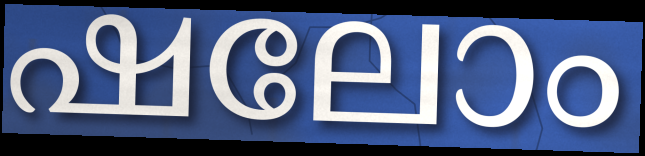
ഷലോം